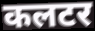
कलटर